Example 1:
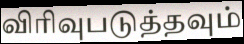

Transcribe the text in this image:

விரிவுபடுத்தவும்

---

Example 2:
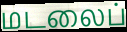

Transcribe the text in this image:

மடலைப்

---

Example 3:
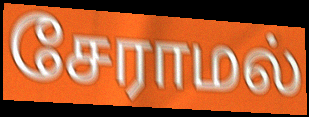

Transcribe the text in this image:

சேராமல்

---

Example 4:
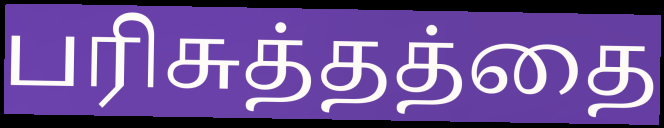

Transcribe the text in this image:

பரிசுத்தத்தை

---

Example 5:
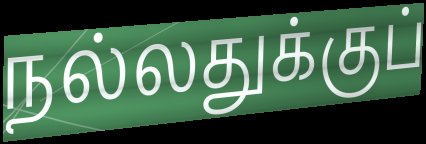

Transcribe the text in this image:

நல்லதுக்குப்